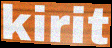
kirit